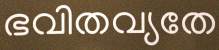
ഭവിതവ്യതേ